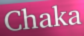
Chaka